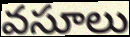
వసూలు